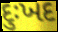
દુઃખદ